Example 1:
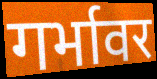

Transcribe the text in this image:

गर्भावर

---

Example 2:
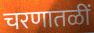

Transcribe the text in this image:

चरणातळीं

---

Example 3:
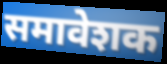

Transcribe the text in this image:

समावेशक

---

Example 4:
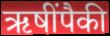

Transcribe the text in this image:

ऋषींपैकी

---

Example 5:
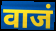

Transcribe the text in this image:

वाजं